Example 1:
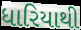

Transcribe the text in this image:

ધારિયાથી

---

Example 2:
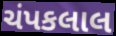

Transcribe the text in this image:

ચંપકલાલ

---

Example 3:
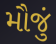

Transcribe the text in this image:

મૌજું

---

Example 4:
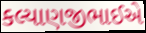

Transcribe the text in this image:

કલ્યાણજીભાઈએ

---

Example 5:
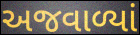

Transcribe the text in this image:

અજવાળ્યાં